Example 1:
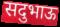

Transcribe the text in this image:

सदुभाऊ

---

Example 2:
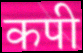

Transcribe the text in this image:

कपी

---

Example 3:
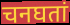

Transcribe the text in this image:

चनघतां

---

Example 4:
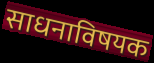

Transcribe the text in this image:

साधनाविषयक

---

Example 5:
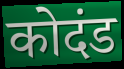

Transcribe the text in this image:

कोदंड